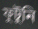
ফুটুনি